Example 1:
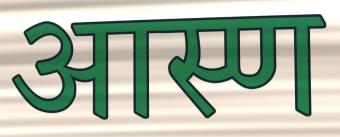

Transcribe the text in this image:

आस्ण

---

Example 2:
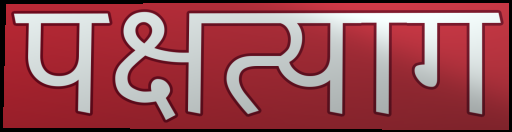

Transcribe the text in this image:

पक्षत्याग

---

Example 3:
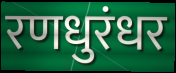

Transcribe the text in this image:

रणधुरंधर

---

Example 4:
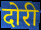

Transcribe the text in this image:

दोरी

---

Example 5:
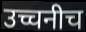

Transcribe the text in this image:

उच्चनीच